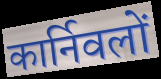
कार्निवलों